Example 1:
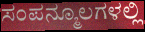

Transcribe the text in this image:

ಸಂಪನ್ಮೂಲಗಳಲ್ಲಿ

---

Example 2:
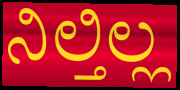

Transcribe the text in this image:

ನಿಲ್ತಿಲ್ಲ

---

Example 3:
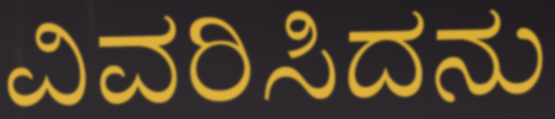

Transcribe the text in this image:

ವಿವರಿಸಿದನು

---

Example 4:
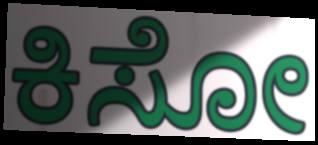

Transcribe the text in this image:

ಕಿಸೋ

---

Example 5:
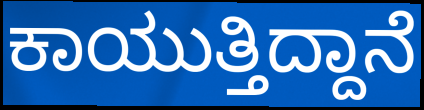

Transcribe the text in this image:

ಕಾಯುತ್ತಿದ್ದಾನೆ